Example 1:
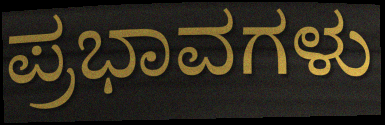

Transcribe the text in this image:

ಪ್ರಭಾವಗಳು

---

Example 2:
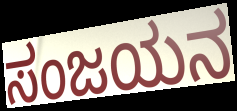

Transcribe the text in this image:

ಸಂಜಯನ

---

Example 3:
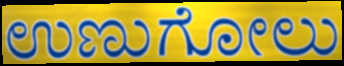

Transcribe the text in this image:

ಉಣುಗೋಲು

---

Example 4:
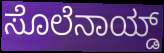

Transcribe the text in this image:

ಸೊಲೆನಾಯ್ಡ್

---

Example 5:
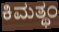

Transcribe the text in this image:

ಕಿಮತ್ಥಂ